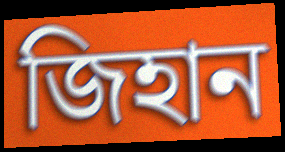
জিহান